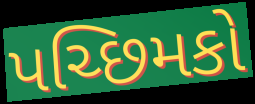
પચ્છિમકો